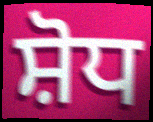
ਸ਼ੋਧ